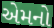
એમનો